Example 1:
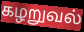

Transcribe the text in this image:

கழறுவல்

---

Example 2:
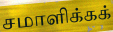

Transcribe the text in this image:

சமாளிக்கக்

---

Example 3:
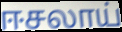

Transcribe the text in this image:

ஈசலாய்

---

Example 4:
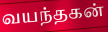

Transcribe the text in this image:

வயந்தகன்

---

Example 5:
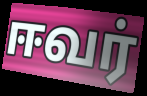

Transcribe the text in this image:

ஈவர்